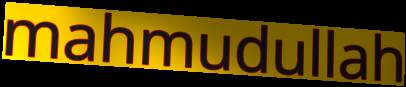
mahmudullah